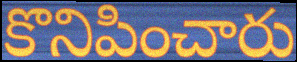
కొనిపించారు